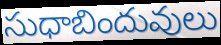
సుధాబిందువులు